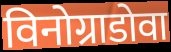
विनोग्राडोवा